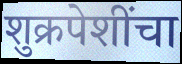
शुक्रपेशींचा